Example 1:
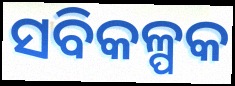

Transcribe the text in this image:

ସବିକଳ୍ପକ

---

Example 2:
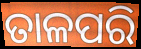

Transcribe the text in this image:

ତାଳପରି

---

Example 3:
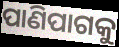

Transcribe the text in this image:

ପାଣିପାଗକୁ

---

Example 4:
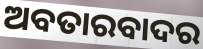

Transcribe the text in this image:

ଅବତାରବାଦର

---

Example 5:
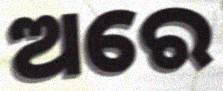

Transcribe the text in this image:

ଅରେ